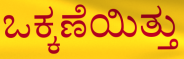
ಒಕ್ಕಣೆಯಿತ್ತು